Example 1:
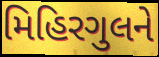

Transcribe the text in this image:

મિહિરગુલને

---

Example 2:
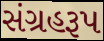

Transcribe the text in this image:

સંગ્રહરૂપ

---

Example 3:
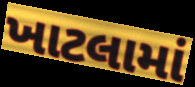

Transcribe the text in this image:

ખાટલામાં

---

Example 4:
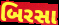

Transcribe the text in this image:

બિરસા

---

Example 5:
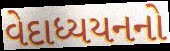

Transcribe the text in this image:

વેદાધ્યયનનો